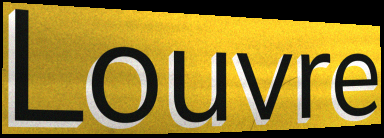
Louvre